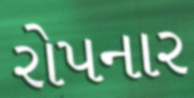
રોપનાર